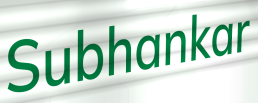
Subhankar